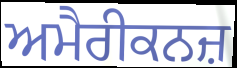
ਅਮੈਰੀਕਨਜ਼